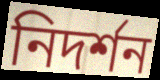
নিদর্শন